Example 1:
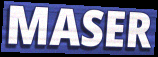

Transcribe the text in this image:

MASER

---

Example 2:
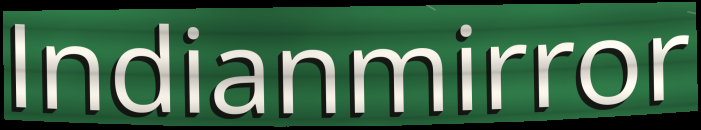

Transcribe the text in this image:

Indianmirror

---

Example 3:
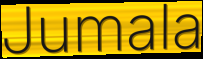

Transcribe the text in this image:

Jumala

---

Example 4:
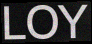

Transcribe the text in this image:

LOY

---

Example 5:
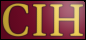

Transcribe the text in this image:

CIH